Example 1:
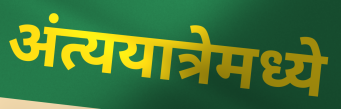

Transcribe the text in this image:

अंत्ययात्रेमध्ये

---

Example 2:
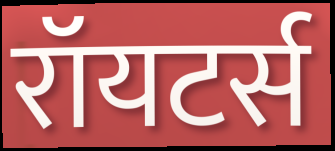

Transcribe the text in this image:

रॉयटर्स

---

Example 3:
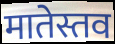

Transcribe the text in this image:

मातेस्तव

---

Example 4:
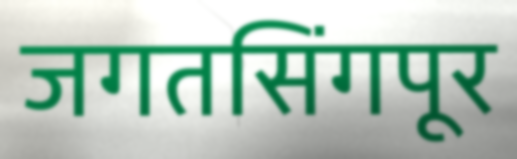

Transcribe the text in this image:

जगतसिंगपूर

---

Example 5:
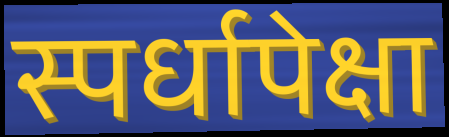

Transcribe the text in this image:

स्पर्धापेक्षा